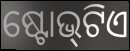
ଷ୍ଟୋଭ୍‌ଟିଏ